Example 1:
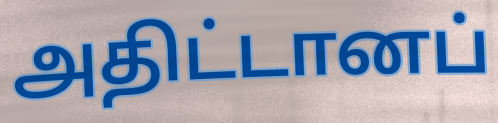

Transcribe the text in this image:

அதிட்டானப்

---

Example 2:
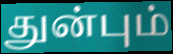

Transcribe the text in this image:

துன்பும்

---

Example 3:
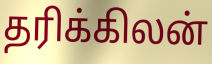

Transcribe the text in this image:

தரிக்கிலன்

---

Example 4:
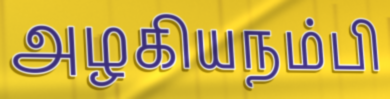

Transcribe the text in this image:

அழகியநம்பி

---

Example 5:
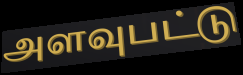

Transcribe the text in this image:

அளவுபட்டு